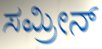
ಸಮ್ರೀನ್